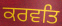
ਕਰਵਤਿ